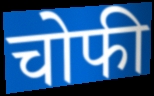
चोफी